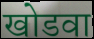
खोडवा